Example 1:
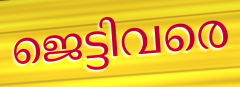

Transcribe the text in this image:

ജെട്ടിവരെ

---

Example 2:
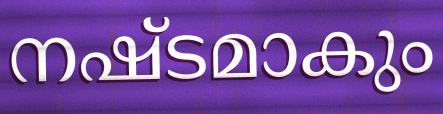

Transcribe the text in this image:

നഷ്ടമാകും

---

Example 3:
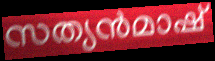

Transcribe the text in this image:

സത്യൻമാഷ്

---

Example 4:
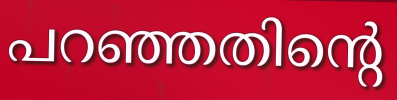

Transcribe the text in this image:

പറഞ്ഞതിന്റെ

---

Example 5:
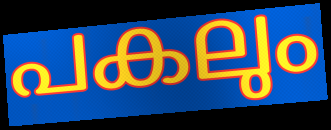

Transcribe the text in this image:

പകലും